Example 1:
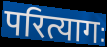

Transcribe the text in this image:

परित्यागः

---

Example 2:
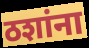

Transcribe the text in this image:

ठशांना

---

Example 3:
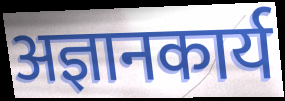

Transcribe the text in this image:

अज्ञानकार्य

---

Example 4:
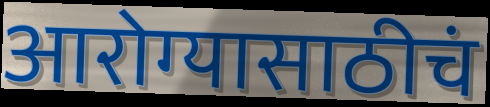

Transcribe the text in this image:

आरोग्यासाठीचं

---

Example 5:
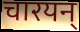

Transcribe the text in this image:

चारयन्